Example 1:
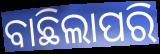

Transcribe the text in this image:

ବାଛିଲାପରି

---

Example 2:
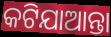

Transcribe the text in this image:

କଟିଯାଆନ୍ତା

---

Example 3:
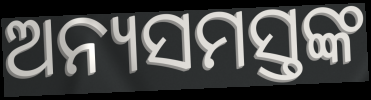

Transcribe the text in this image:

ଅନ୍ୟସମସ୍ତଙ୍କ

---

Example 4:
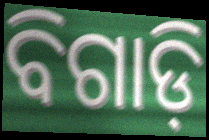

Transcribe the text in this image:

ବିଗାଡ଼ି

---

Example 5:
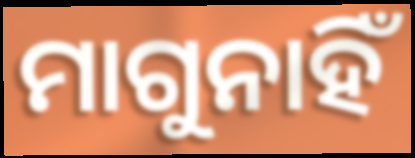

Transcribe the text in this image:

ମାଗୁନାହିଁ